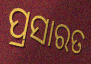
ପ୍ରସାରତ